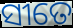
ସୀତେ